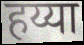
हय्या